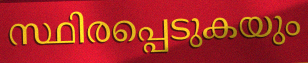
സ്ഥിരപ്പെടുകയും